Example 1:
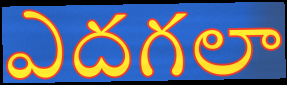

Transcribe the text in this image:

ఎదగలా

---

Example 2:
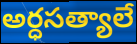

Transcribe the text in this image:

అర్ధసత్యాలే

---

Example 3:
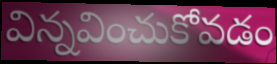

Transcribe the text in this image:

విన్నవించుకోవడం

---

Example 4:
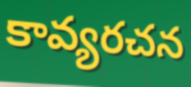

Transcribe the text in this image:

కావ్యరచన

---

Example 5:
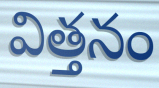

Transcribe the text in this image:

విత్తనం